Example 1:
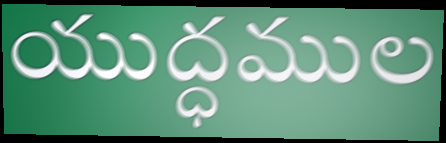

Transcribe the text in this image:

యుద్ధముల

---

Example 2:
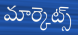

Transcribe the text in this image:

మార్కెట్స్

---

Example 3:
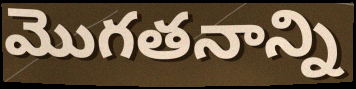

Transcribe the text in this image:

మొగతనాన్ని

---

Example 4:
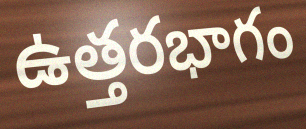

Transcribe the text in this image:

ఉత్తరభాగం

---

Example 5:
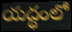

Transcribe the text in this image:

యద్ధంలో